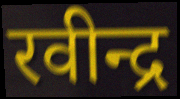
रवीन्द्र